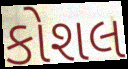
કોશલ